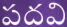
పదవి